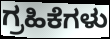
ಗ್ರಹಿಕೆಗಳು